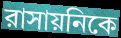
রাসায়নিকে